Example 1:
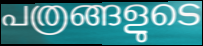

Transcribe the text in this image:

പത്രങ്ങളുടെ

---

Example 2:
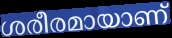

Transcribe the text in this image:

ശരീരമായാണ്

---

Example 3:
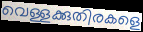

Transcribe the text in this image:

വെള്ളക്കുതിരകളെ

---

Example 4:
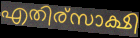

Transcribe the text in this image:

എതിര്സാക്ഷി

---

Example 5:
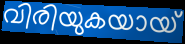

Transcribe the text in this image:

വിരിയുകയായ്